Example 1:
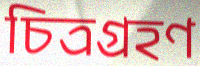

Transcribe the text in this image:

চিত্ৰগ্ৰহণ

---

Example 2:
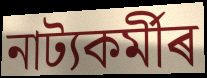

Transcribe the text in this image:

নাট্যকৰ্মীৰ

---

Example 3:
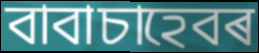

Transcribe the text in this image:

বাবাচাহেবৰ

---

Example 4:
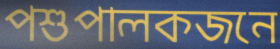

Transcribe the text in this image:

পশুপালকজনে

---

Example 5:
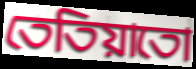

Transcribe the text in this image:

তেতিয়াতো